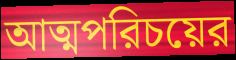
আত্মপরিচয়ের